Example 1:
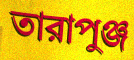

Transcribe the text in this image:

তারাপুঞ্জ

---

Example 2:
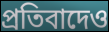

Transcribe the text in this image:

প্রতিবাদেও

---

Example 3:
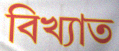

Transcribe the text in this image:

বিখ্যাত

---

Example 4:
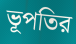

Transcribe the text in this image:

ভূপতির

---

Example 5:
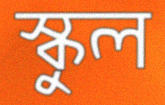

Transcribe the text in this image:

স্কুল